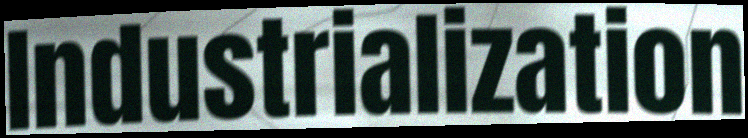
Industrialization